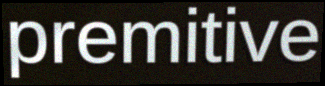
premitive